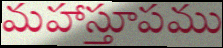
మహాస్తూపము